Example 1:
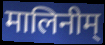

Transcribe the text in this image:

मालिनीम्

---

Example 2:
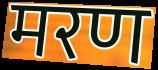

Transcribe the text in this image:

मरण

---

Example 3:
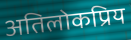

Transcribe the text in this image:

अतिलोकप्रिय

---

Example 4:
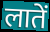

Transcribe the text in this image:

लातें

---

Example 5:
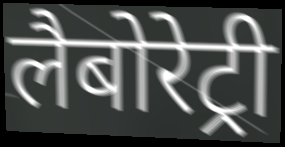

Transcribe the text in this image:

लैबोरेट्री